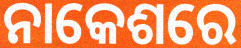
ନାକେଶରେ